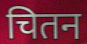
चितन